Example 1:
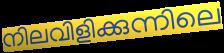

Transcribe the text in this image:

നിലവിളിക്കുന്നിലെ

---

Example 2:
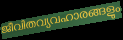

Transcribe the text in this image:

ജീവിതവ്യവഹാരങ്ങളും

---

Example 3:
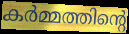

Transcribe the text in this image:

കർമ്മത്തിന്റെ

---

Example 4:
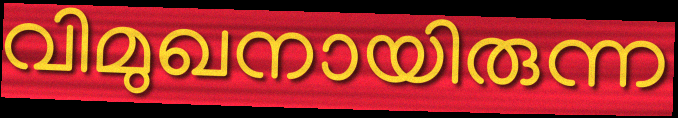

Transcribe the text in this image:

വിമുഖനായിരുന്ന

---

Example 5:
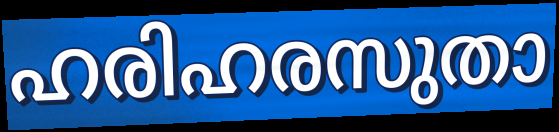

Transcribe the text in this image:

ഹരിഹരസുതാ